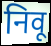
निवू